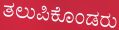
ತಲುಪಿಕೊಂಡರು